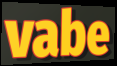
vabe